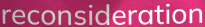
reconsideration